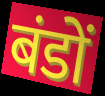
बंडों